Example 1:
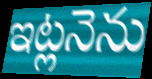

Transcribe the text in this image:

ఇట్లనెను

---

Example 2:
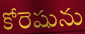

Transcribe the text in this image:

కోరెషును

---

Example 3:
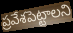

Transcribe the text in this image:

ప్రవేశపెట్టాలని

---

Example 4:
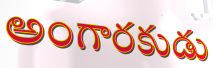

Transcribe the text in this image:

అంగారకుడు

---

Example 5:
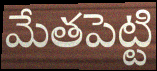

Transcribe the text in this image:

మేతపెట్టి